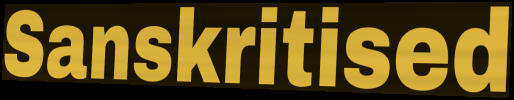
Sanskritised